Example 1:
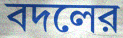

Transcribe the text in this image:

বদলের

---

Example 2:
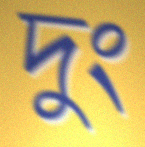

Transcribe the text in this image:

দুং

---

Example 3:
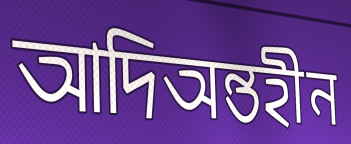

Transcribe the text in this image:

আদিঅন্তহীন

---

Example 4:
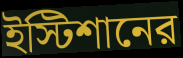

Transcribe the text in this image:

ইস্টিশানের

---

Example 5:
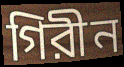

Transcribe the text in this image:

গিরীন